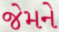
જેમને